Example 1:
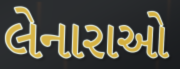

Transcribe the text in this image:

લેનારાઓ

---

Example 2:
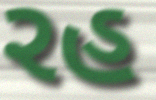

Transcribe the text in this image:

રહ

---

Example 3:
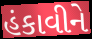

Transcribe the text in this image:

હંકાવીને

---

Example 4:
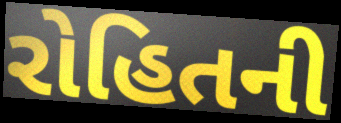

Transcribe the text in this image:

રોહિતની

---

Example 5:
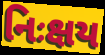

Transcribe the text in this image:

નિઃક્ષય